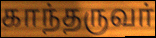
காந்தருவர்